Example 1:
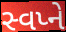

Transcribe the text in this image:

સ્વપ્ને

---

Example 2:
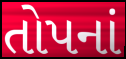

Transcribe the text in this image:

તોપનાં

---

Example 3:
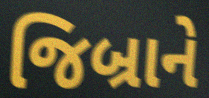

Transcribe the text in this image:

જિબ્રાને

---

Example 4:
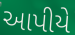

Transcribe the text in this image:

આપીયે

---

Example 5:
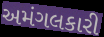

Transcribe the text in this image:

અમંગલકારી